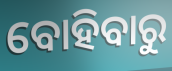
ବୋହିବାରୁ